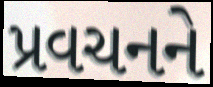
પ્રવચનને